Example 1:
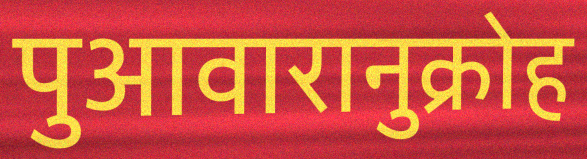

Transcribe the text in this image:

पुआवारानुक्रोह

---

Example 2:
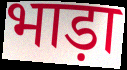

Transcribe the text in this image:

भाड़ा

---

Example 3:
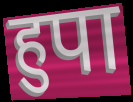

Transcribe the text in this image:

हुपा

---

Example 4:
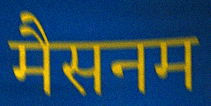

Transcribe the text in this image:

मैसनम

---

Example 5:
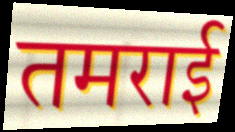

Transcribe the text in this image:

तमराई